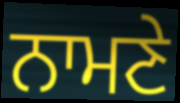
ਨਾਮਣੇ